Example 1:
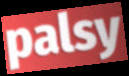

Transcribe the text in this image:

palsy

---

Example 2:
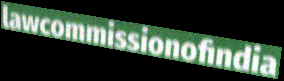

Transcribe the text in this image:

lawcommissionofindia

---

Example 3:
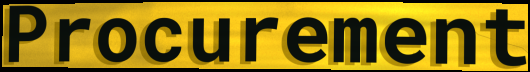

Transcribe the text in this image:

Procurement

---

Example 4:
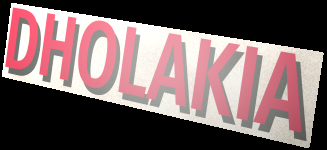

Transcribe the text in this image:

DHOLAKIA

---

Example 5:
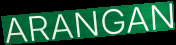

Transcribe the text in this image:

ARANGAN